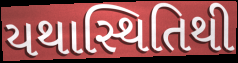
યથાસ્થિતિથી